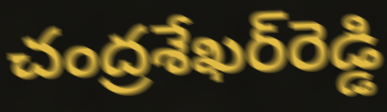
చంద్రశేఖర్‌రెడ్డి